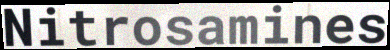
Nitrosamines